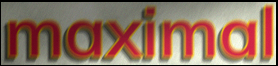
maximal